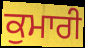
ਕੁਮਾਰੀ